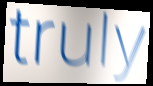
truly